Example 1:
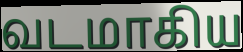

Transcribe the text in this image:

வடமாகிய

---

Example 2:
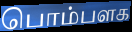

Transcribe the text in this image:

பொம்பளக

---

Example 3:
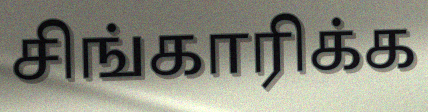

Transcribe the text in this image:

சிங்காரிக்க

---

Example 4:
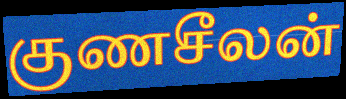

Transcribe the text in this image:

குணசீலன்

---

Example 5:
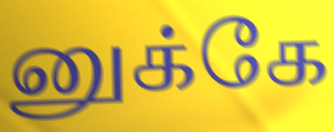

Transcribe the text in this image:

னுக்கே